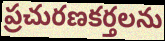
ప్రచురణకర్తలను